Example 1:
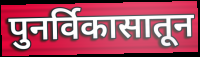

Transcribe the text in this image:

पुनर्विकासातून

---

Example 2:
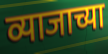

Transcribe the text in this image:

व्याजाच्या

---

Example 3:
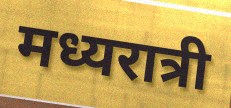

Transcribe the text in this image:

मध्यरात्री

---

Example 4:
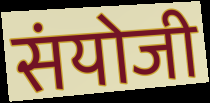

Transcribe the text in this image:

संयोजी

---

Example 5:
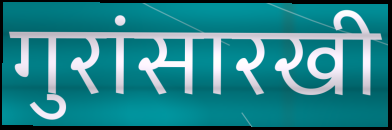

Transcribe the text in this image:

गुरांसारखी